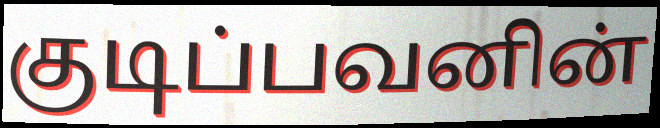
குடிப்பவனின்